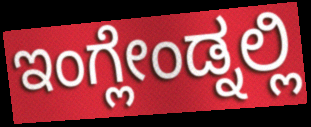
ಇಂಗ್ಲೇಂಡ್ನಲ್ಲಿ